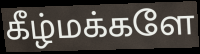
கீழ்மக்களே